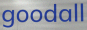
goodall